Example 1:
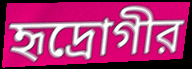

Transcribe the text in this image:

হৃদ্রোগীর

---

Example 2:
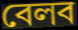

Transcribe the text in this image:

বেলব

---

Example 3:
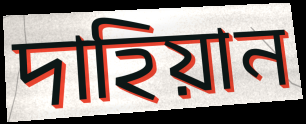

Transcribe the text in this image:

দাহিয়ান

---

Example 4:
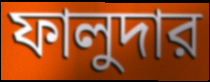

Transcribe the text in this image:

ফালুদার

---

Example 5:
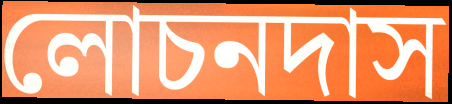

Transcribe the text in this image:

লোচনদাস